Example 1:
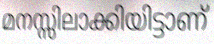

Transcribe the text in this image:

മനസ്സിലാക്കിയിട്ടാണ്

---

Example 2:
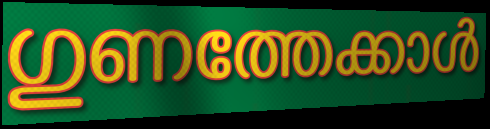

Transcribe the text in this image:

ഗുണത്തേക്കാൾ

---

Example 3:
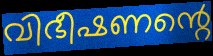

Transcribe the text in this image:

വിഭീഷണന്റെ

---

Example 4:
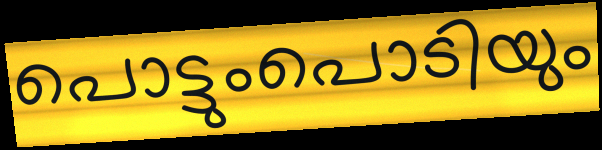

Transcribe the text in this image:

പൊട്ടുംപൊടിയും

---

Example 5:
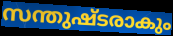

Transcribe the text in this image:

സന്തുഷ്ടരാകും